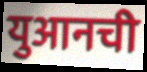
युआनची